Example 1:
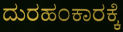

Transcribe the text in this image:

ದುರಹಂಕಾರಕ್ಕೆ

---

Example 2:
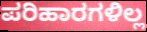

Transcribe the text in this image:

ಪರಿಹಾರಗಳಿಲ್ಲ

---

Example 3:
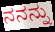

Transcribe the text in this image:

ನನನ್ನು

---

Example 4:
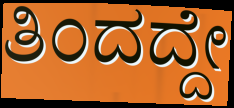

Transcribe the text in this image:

ತಿಂದದ್ದೇ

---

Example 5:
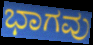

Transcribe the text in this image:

ಭಾಗವು